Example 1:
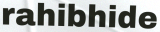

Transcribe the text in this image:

rahibhide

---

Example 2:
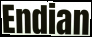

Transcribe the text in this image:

Endian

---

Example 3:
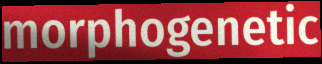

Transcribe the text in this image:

morphogenetic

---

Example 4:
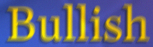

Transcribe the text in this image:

Bullish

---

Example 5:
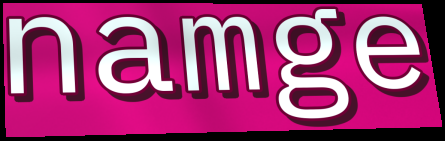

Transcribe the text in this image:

namge